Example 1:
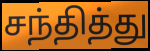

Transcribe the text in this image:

சந்தித்து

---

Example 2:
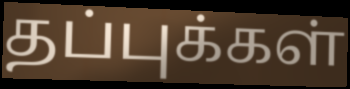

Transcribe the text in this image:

தப்புக்கள்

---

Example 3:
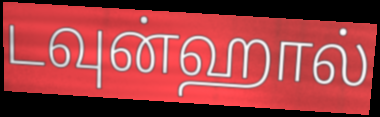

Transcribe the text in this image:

டவுன்ஹால்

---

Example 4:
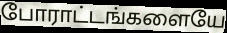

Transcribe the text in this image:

போராட்டங்களையே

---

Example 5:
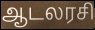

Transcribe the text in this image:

ஆடலரசி